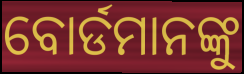
ବୋର୍ଡମାନଙ୍କୁ